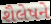
શૈલેષને